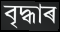
বৃদ্ধাৰ